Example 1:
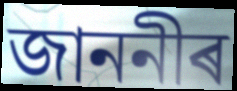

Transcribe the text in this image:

জাননীৰ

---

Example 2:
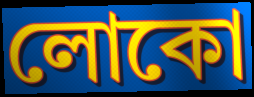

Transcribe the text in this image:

লোকো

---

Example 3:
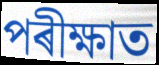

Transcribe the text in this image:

পৰীক্ষাত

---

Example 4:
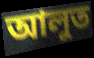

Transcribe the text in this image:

আলুত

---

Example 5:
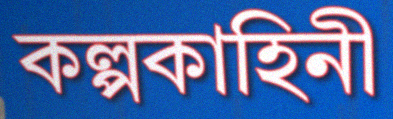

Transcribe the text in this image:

কল্পকাহিনী